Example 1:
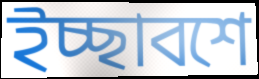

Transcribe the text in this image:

ইচ্ছাবশে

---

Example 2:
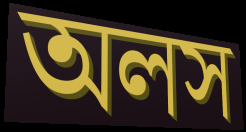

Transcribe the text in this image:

অলস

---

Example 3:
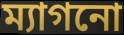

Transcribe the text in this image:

ম্যাগনো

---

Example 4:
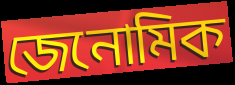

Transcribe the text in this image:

জেনোমিক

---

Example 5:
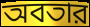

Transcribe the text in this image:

অবতার